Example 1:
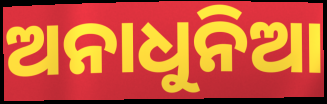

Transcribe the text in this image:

ଅନାଧୁନିଆ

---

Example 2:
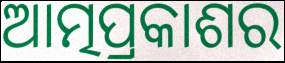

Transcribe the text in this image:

ଆତ୍ମପ୍ରକାଶର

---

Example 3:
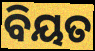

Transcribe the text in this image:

ବିୟତ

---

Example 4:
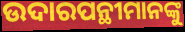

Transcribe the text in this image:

ଉଦାରପନ୍ଥୀମାନଙ୍କୁ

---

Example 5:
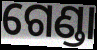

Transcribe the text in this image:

ଗେଣ୍ଡା